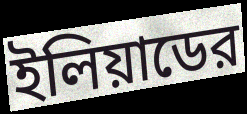
ইলিয়াডের